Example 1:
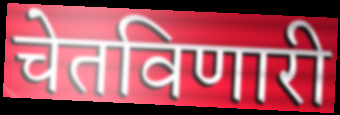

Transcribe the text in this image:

चेतविणारी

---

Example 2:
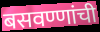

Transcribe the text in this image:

बसवण्णांची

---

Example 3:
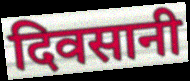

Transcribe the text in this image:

दिवसानी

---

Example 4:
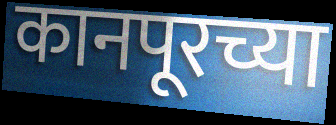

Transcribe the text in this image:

कानपूरच्या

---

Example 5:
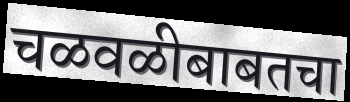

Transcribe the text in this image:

चळवळीबाबतचा